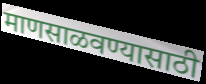
माणसाळवण्यासाठी